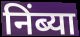
निंब्या